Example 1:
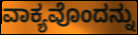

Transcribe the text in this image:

ವಾಕ್ಯವೊಂದನ್ನು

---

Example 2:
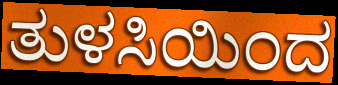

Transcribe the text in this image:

ತುಳಸಿಯಿಂದ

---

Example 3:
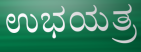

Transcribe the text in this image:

ಉಭಯತ್ರ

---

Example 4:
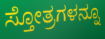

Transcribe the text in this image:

ಸ್ತೋತ್ರಗಳನ್ನೂ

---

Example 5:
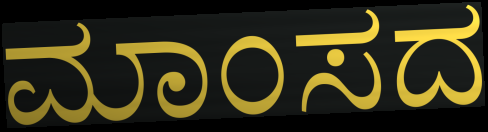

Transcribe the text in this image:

ಮಾಂಸದ